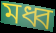
মধ্ব